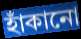
হাঁকানো